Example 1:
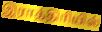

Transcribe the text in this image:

இராத்திரியில்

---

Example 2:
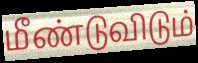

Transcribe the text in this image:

மீண்டுவிடும்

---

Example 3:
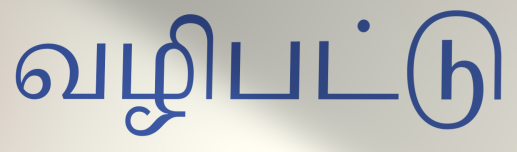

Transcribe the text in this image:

வழிபட்டு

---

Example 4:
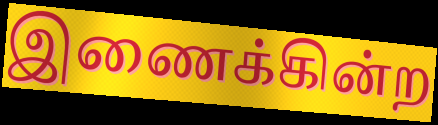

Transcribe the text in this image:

இணைக்கின்ற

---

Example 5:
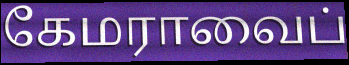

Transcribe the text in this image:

கேமராவைப்